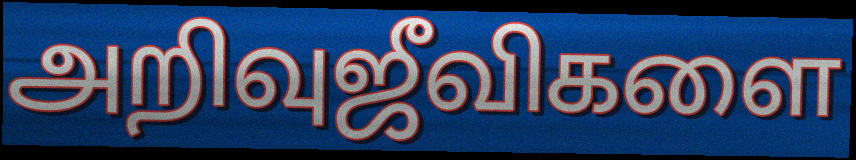
அறிவுஜீவிகளை